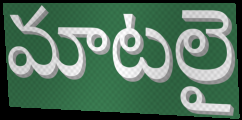
మాటలై